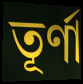
তূর্ণা